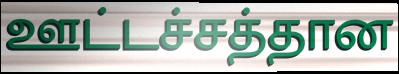
ஊட்டச்சத்தான